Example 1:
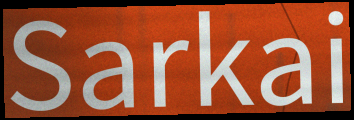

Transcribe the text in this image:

Sarkai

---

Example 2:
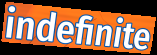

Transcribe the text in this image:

indefinite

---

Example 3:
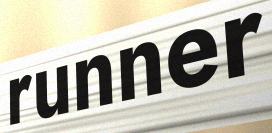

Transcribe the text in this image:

runner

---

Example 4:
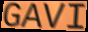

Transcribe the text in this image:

GAVI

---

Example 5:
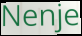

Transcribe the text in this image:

Nenje